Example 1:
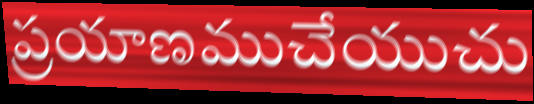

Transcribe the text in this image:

ప్రయాణముచేయుచు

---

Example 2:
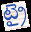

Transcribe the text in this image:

ట్రై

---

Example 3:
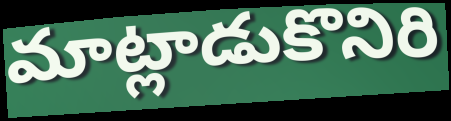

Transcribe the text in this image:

మాట్లాడుకొనిరి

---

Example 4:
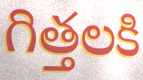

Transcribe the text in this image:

గిత్తలకి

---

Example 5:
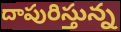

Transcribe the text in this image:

దాపురిస్తున్న